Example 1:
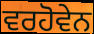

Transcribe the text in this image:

ਵਰਹੋਵੇਨ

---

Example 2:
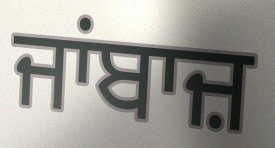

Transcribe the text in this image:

ਜਾਂਬਾਜ਼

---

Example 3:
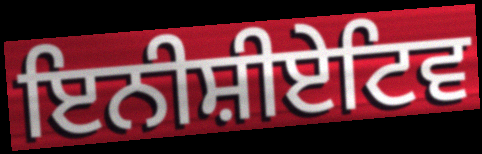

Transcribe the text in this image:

ਇਨੀਸ਼ੀਏਟਿਵ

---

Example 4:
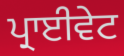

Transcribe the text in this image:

ਪ੍ਰਾਈਵੇਟ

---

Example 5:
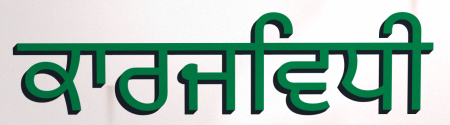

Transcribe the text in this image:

ਕਾਰਜਵਿਧੀ